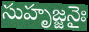
సుహృజ్జనైః